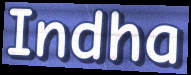
Indha